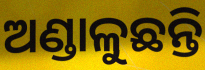
ଅଣ୍ଡାଳୁଛନ୍ତି